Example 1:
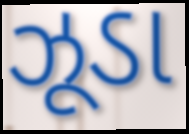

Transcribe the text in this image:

ઝૂડા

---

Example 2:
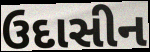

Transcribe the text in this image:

ઉદાસીન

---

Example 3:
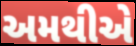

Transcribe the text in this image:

અમથીએ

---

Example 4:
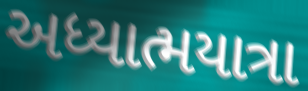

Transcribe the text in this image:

અધ્યાત્મયાત્રા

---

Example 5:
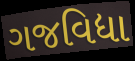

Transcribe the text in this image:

ગજવિદ્યા